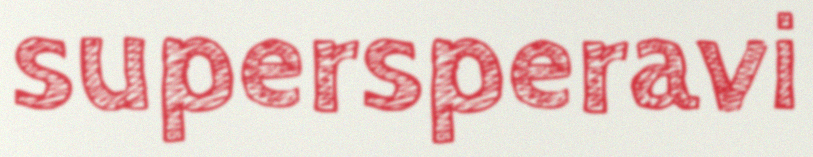
supersperavi